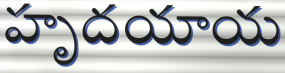
హృదయాయ